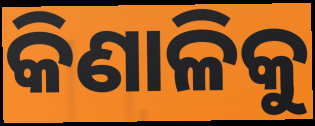
କିଣାଳିକୁ